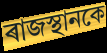
ৰাজস্থানকে